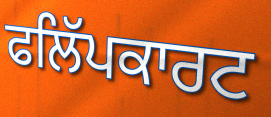
ਫਲਿੱਪਕਾਰਟ